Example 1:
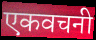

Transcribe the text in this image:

एकवचनी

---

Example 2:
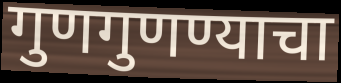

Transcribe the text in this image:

गुणगुणण्याचा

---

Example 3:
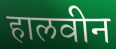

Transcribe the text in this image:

हालवीन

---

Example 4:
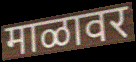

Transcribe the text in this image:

माळावर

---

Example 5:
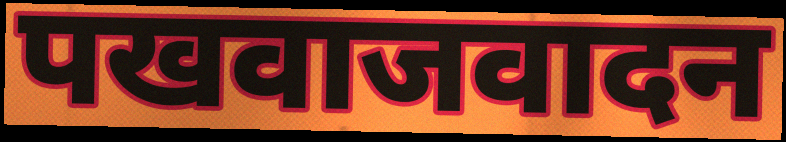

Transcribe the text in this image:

पखवाजवादन